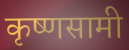
कृष्णसामी